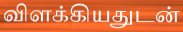
விளக்கியதுடன்